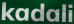
kadali